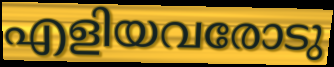
എളിയവരോടു